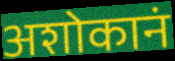
अशोकानं